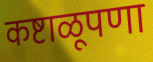
कष्टाळूपणा